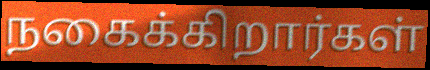
நகைக்கிறார்கள்